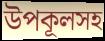
উপকূলসহ